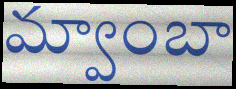
మ్వాంబా